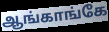
ஆங்காங்கே